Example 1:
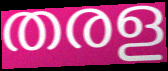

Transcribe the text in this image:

തരള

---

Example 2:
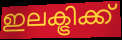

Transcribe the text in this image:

ഇലക്ട്രിക്ക്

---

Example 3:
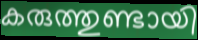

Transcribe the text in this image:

കരുത്തുണ്ടായി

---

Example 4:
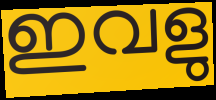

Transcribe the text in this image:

ഇവളു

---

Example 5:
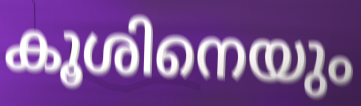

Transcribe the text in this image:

കൂശിനെയും